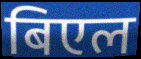
बिएल